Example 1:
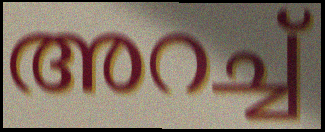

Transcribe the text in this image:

അറച്ച്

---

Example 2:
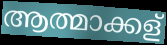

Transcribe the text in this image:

ആത്മാക്കള്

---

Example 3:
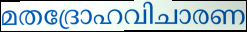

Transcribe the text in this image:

മതദ്രോഹവിചാരണ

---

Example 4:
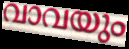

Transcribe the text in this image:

വാവയും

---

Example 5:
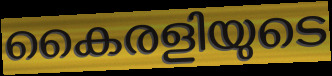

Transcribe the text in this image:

കൈരളിയുടെ